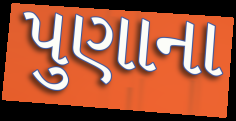
પુણાના